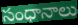
సంధానాలు